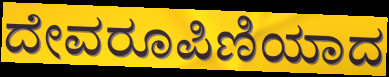
ದೇವರೂಪಿಣಿಯಾದ